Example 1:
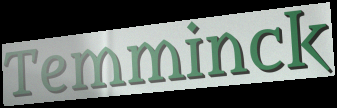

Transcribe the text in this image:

Temminck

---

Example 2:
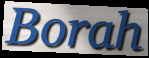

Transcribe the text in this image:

Borah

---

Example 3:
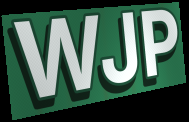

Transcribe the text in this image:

WJP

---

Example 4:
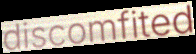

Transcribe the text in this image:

discomfited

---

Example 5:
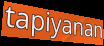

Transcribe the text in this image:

tapiyanan